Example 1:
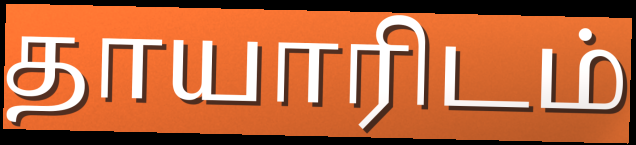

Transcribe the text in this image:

தாயாரிடம்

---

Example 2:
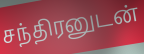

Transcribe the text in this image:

சந்திரனுடன்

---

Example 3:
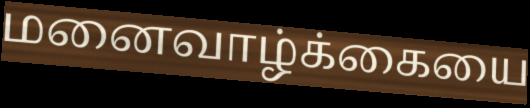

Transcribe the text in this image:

மனைவாழ்க்கையை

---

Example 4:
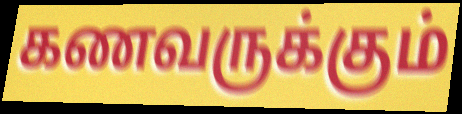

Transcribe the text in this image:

கணவருக்கும்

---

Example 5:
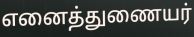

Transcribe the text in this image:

எனைத்துணையர்